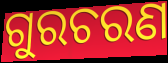
ଗୁରଚରଣ